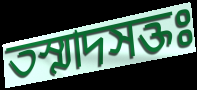
তস্মাদসক্তঃ